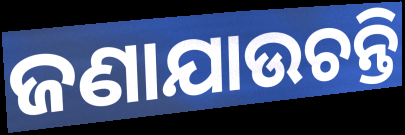
ଜଣାଯାଉଚନ୍ତି